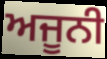
ਅਜੂਨੀ